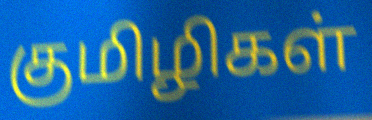
குமிழிகள்